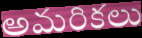
అమరికలు